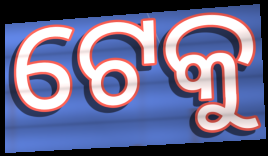
ଟେକୁ